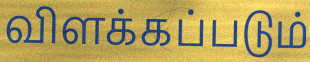
விளக்கப்படும்